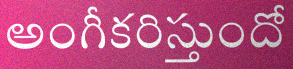
అంగీకరిస్తుందో